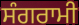
ਸੰਗਰਾਮੀ